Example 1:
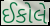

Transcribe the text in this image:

ઈકોલે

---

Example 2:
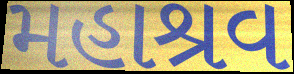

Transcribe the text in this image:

મહાશ્રવ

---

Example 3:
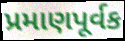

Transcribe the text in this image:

પ્રમાણપૂર્વક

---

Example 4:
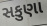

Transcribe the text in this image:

સકુણા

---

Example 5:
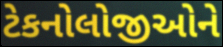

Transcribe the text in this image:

ટેકનોલોજીઓને